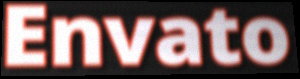
Envato